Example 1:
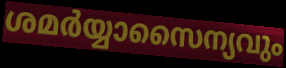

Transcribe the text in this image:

ശമർയ്യാസൈന്യവും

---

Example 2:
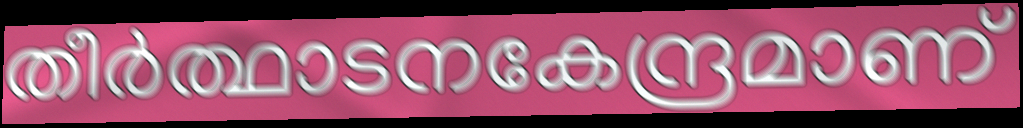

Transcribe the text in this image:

തീർത്ഥാടനകേന്ദ്രമാണ്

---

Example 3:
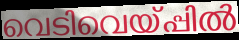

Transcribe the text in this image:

വെടിവെയ്പ്പിൽ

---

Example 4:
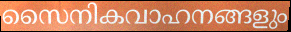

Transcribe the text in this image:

സൈനികവാഹനങ്ങളും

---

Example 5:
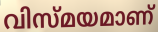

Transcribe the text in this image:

വിസ്മയമാണ്